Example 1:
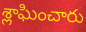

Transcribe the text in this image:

శ్లాఘించారు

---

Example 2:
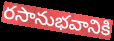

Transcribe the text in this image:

రసానుభవానికి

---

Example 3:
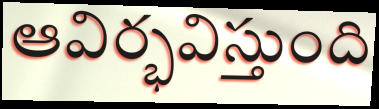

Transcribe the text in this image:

ఆవిర్భవిస్తుంది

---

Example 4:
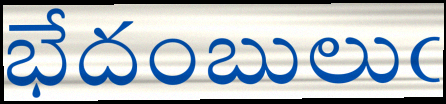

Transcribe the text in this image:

భేదంబులుఁ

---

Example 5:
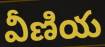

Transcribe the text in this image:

వీణియ